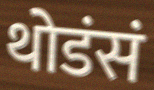
थोडंसं